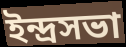
ইন্দ্রসভা